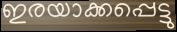
ഇരയാക്കപ്പെട്ടു